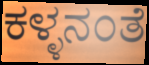
ಕಳ್ಳನಂತೆ